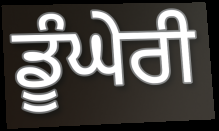
ਡੂੰਘੇਰੀ